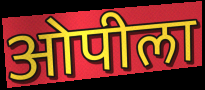
ओपीला